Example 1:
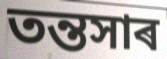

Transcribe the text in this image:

তন্তসাৰ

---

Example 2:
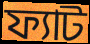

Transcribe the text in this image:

ফ্যাট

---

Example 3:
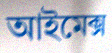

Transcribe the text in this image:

আইমেক্স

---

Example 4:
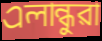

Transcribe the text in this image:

এলান্ধুৱা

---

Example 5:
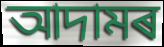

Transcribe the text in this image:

আদামৰ